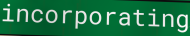
incorporating